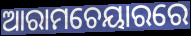
ଆରାମଚେୟାରରେ